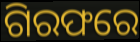
ଗିରଫରେ